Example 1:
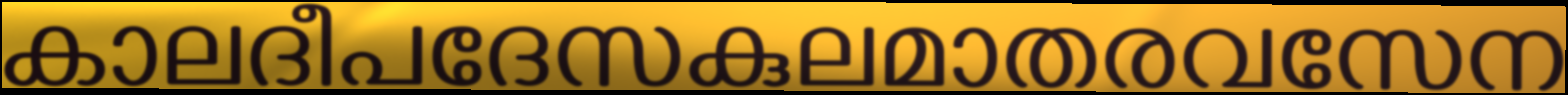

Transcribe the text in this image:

കാലദീപദേസകുലമാതരവസേന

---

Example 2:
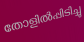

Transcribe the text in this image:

തോളിൽപ്പിടിച്ചു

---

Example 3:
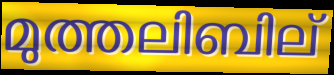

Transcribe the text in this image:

മുത്തലിബില്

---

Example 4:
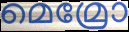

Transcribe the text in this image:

മെമ്രോ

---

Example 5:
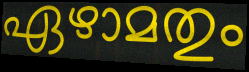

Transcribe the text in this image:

ഏഴാമതും